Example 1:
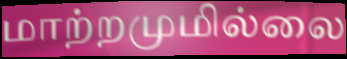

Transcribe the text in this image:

மாற்றமுமில்லை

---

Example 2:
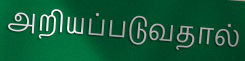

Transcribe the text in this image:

அறியப்படுவதால்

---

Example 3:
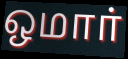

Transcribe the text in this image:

ஒமார்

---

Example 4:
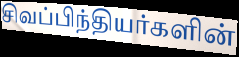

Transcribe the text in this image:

சிவப்பிந்தியர்களின்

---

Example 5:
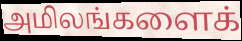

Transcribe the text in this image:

அமிலங்களைக்